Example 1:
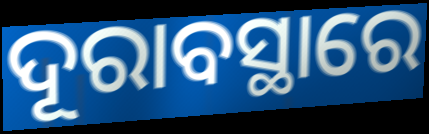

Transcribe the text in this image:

ଦୂରାବସ୍ଥାରେ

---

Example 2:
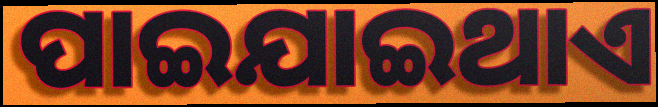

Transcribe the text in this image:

ପାଇଯାଇଥାଏ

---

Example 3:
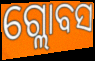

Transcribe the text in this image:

ଗ୍ଲୋବସ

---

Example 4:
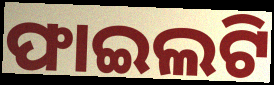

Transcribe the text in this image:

ଫାଇଲଟି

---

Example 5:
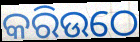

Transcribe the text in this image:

କରିଉଠେ